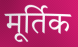
मूर्तिक